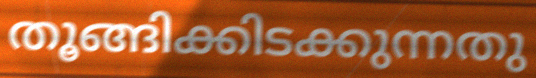
തൂങ്ങിക്കിടക്കുന്നതു